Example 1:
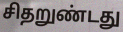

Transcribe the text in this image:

சிதறுண்டது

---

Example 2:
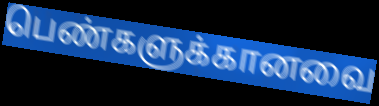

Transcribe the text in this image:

பெண்களுக்கானவை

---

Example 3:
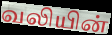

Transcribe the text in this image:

வலியின்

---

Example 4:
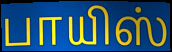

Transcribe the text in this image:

பாயிஸ்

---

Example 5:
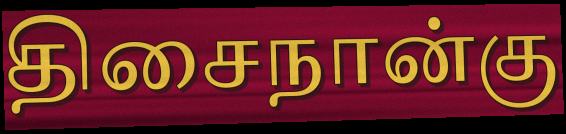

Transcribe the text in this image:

திசைநான்கு